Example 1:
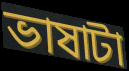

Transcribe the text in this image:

ভাষাটা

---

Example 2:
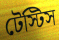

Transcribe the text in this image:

টেস্টিস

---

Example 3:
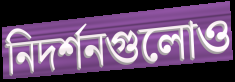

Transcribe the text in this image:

নিদর্শনগুলোও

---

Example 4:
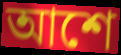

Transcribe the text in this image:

আশে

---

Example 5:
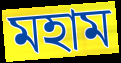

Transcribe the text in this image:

মহাম